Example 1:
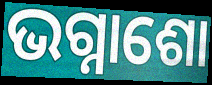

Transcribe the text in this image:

ଭଗ୍ନାଶୋ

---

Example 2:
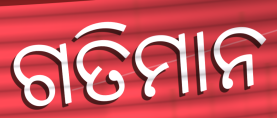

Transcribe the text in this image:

ଗତିମାନ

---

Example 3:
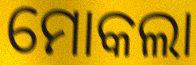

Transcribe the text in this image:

ମୋକଲା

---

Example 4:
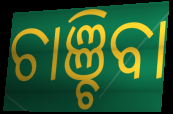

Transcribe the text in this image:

ଚାଞ୍ଚିବା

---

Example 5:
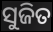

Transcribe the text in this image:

ସୁଜିତ